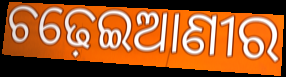
ଚଢ଼େଇଆଣୀର